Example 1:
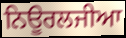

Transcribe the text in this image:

ਨਿਊਰਲਜੀਆ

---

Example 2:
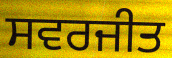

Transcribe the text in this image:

ਸਵਰਜੀਤ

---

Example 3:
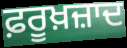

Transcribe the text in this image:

ਫ਼ਰੂਖ਼ਜ਼ਾਦ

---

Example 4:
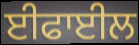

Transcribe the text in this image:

ਈਫਾਈਲ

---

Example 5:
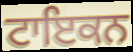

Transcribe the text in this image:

ਟਾਇਕਨ